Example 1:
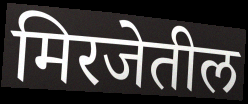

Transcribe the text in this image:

मिरजेतील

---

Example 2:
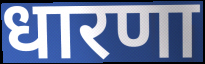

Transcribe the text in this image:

धारणा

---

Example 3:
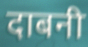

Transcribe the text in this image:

दाबनी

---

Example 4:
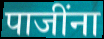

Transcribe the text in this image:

पाजींना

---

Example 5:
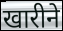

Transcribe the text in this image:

खारीने